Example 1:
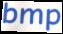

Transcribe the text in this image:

bmp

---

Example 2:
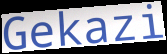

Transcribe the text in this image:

Gekazi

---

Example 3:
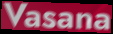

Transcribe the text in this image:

Vasana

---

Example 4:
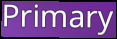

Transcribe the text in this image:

Primary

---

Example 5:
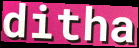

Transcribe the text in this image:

ditha